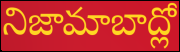
నిజామాబాద్లో